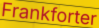
Frankforter